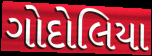
ગોદોલિયા